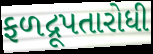
ફળદ્રૂપતારોધી